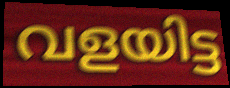
വളയിട്ട